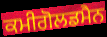
ਕਮੀਗੋਲਡਮੈਨ